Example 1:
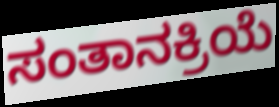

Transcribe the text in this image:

ಸಂತಾನಕ್ರಿಯೆ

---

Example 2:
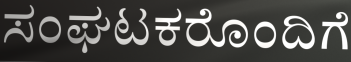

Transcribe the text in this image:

ಸಂಘಟಕರೊಂದಿಗೆ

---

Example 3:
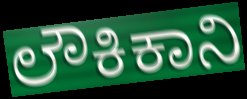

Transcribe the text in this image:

ಲೌಕಿಕಾನಿ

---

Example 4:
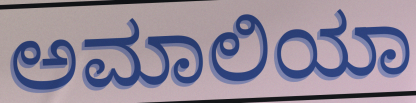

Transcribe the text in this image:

ಅಮಾಲಿಯಾ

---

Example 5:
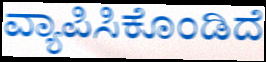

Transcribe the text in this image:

ವ್ಯಾಪಿಸಿಕೊಂಡಿದೆ